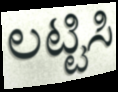
ಲಟ್ಟಿಸಿ